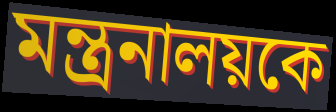
মন্ত্রনালয়কে